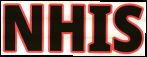
NHIS